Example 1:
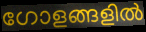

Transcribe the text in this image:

ഗോളങ്ങളിൽ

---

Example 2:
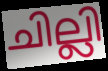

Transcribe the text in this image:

ചില്ലി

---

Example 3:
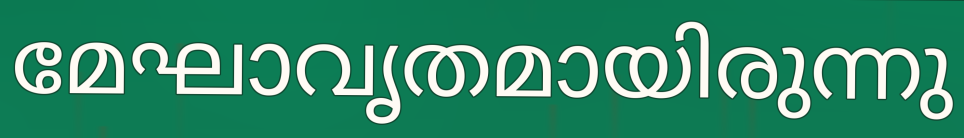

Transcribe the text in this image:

മേഘാവൃതമായിരുന്നു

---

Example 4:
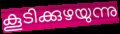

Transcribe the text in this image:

കൂടിക്കുഴയുന്നു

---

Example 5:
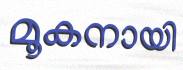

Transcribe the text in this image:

മൂകനായി